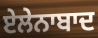
ਏਲੇਨਾਬਾਦ